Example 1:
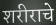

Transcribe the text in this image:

शरीराचे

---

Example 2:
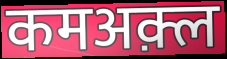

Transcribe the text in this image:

कमअक़्ल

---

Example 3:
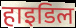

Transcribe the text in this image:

हाइडिल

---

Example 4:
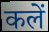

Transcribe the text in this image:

कलें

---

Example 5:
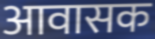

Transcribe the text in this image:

आवासक